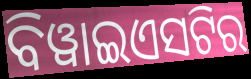
ବିୱାଇଏସଟିର